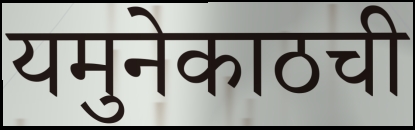
यमुनेकाठची